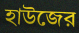
হাউজের